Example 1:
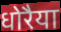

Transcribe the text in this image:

धोरैया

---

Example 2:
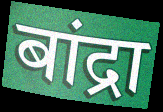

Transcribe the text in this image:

बांद्रा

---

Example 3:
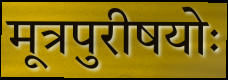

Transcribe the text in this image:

मूत्रपुरीषयोः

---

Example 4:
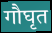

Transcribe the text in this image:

गौघृत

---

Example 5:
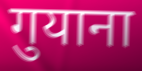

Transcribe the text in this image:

गुयाना